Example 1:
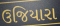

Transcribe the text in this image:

ઉજિયારા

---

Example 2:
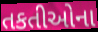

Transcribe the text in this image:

તકતીઓના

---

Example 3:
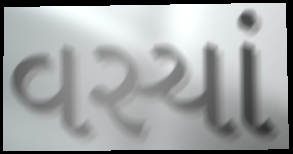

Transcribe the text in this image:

વસ્યાં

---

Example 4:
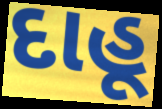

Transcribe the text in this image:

દાહૂ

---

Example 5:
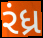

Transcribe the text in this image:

રંધ્ર